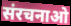
संरचनाओ